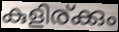
കുളിര്ക്കും